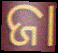
ଜା